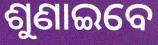
ଶୁଣାଇବେ